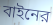
বাইনের